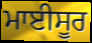
ਮਾਈਸੂਰ